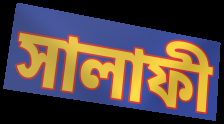
সালাফী